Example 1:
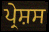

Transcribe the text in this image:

ਪ੍ਰੇਸ਼ਸ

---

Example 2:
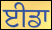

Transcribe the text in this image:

ਈਡਾ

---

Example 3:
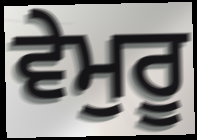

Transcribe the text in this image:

ਵੇਮੁਰੂ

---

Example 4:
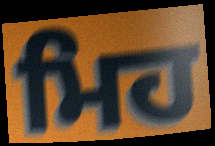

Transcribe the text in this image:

ਮਿਹ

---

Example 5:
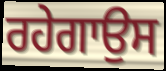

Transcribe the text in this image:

ਰਹੇਗਾਉਸ